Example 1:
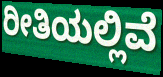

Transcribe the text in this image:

ರೀತಿಯಲ್ಲಿವೆ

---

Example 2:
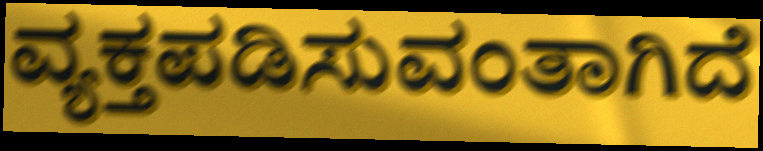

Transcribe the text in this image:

ವ್ಯಕ್ತಪಡಿಸುವಂತಾಗಿದೆ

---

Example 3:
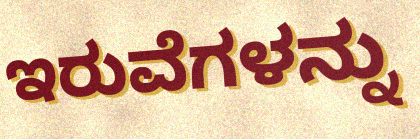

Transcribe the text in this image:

ಇರುವೆಗಳನ್ನು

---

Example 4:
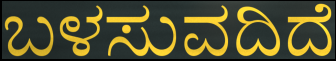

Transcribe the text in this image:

ಬಳಸುವದಿದೆ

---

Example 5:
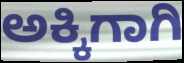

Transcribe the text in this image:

ಅಕ್ಕಿಗಾಗಿ